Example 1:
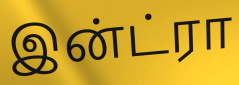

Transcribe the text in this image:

இன்ட்ரா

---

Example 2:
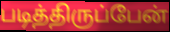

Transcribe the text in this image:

படித்திருப்பேன்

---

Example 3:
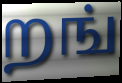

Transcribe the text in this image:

றங்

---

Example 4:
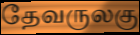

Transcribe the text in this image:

தேவருலகு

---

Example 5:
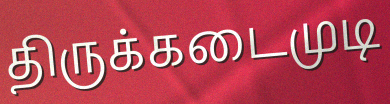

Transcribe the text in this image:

திருக்கடைமுடி